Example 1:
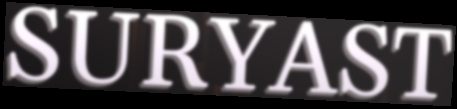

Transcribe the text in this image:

SURYAST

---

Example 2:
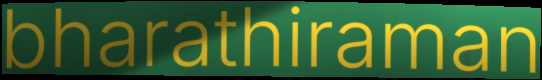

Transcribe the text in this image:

bharathiraman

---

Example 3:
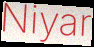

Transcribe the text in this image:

Niyar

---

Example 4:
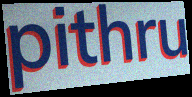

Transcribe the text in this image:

pithru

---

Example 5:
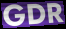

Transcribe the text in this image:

GDR